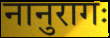
नानुरागः